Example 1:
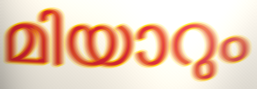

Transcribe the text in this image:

മിയാറും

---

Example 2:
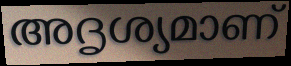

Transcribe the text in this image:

അദൃശ്യമാണ്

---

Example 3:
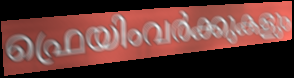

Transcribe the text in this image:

ഫ്രെയിംവർക്കുകളും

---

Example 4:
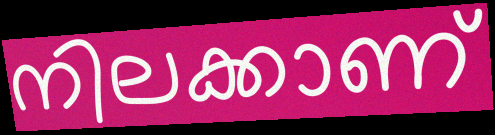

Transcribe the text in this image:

നിലക്കാണ്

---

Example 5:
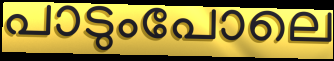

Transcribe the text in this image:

പാടുംപോലെ